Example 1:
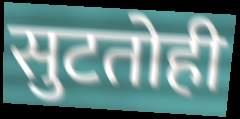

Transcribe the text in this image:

सुटतोही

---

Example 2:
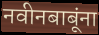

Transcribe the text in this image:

नवीनबाबूंना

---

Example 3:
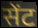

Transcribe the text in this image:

सेंट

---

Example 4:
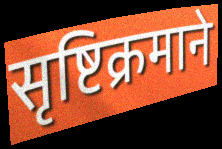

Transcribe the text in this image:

सृष्टिक्रमाने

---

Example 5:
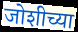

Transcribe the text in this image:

जोशीच्या